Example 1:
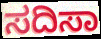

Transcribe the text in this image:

ಸದಿಸಾ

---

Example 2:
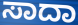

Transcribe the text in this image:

ಸಾದಾ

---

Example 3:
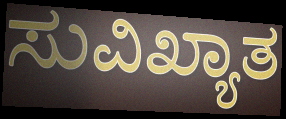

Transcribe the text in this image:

ಸುವಿಖ್ಯಾತ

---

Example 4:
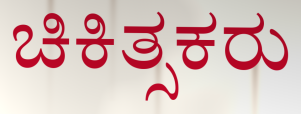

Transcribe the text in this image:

ಚಿಕಿತ್ಸಕರು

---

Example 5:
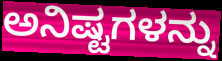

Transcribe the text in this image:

ಅನಿಷ್ಟಗಳನ್ನು